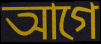
আগে